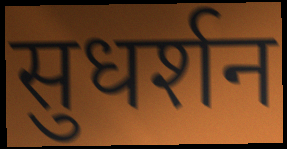
सुधर्शन